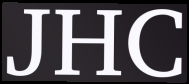
JHC